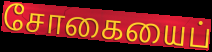
சோகையைப்